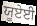
ਯੂਏਈ